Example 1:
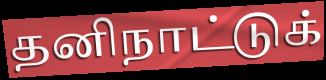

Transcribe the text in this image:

தனிநாட்டுக்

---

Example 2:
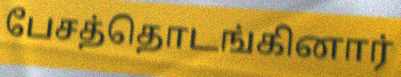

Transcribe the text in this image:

பேசத்தொடங்கினார்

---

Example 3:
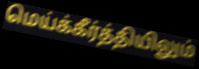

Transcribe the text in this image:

மெய்க்கீர்த்தியிலும்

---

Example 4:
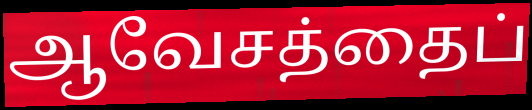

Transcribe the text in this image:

ஆவேசத்தைப்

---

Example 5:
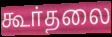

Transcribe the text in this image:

கூர்தலை